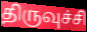
திருவுச்சி